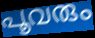
പൂവരും